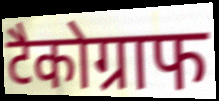
टैकोग्राफ